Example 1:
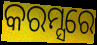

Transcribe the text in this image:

କରମ୍ସରେ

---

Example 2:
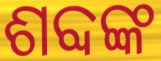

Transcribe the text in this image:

ଶବ୍ଦଙ୍କ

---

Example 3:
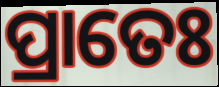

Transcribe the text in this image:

ପ୍ରାତେଃ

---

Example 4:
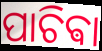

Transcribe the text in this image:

ପାଚିଵା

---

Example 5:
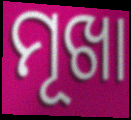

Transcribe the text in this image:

ମୂଖା